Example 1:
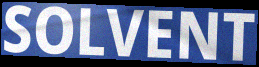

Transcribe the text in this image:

SOLVENT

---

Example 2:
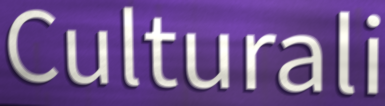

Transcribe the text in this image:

Culturali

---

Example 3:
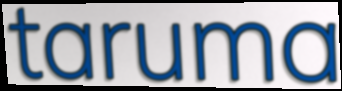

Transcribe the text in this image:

taruma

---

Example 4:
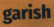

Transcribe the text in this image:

garish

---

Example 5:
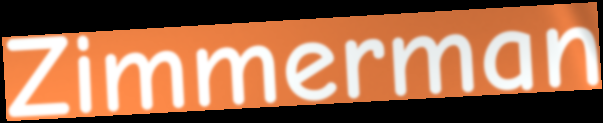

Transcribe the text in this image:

Zimmerman